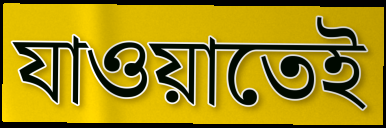
যাওয়াতেই